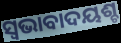
ସ୍ଵଭାବାଦୟଶ୍ଚ